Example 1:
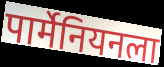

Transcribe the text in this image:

पार्मेनियनला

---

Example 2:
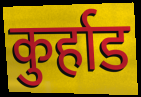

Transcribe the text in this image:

कुर्हाड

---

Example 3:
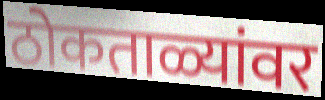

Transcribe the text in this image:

ठोकताळ्यांवर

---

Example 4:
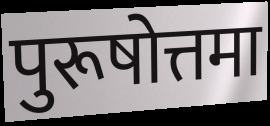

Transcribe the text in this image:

पुरूषोत्तमा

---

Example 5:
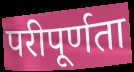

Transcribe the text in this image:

परीपूर्णता